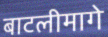
बाटलीमागे